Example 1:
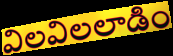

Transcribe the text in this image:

విలవిలలాడిం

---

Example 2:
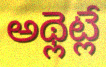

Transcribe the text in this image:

అథ్లెట్లే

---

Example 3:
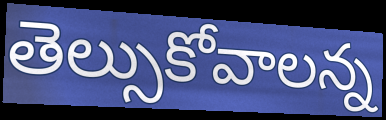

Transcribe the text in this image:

తెల్సుకోవాలన్న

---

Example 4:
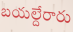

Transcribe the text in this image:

బయల్దేరారు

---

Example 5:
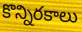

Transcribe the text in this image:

కొన్నిరకాలు